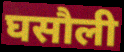
घसौली